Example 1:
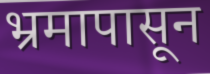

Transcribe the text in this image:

भ्रमापासून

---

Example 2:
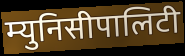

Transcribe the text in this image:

म्युनिसीपालिटी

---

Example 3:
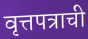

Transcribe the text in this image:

वृत्तपत्राची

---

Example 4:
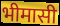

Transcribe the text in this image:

भीमासी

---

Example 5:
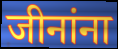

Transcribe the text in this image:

जीनांना